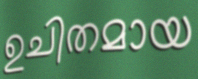
ഉചിതമായ